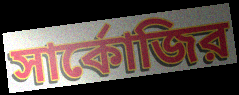
সার্কোজির